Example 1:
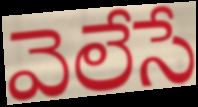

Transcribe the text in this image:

వెలేసే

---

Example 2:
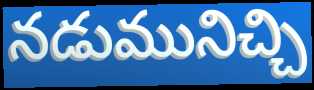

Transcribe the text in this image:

నడుమునిచ్చి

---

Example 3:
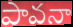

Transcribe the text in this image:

పావనా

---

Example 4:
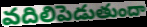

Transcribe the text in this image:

వదిలిపెడుతుందా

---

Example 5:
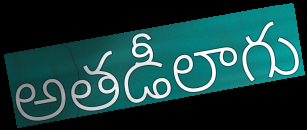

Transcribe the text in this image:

అతడీలాగు